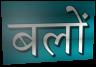
बलों